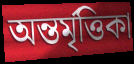
অন্তর্মৃত্তিকা